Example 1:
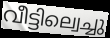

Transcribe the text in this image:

വീട്ടില്വെച്ചു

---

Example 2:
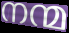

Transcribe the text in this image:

നന്മ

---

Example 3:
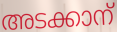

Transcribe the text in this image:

അടക്കാന്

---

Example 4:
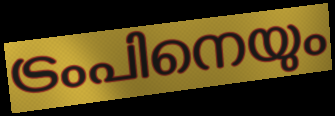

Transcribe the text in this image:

ട്രംപിനെയും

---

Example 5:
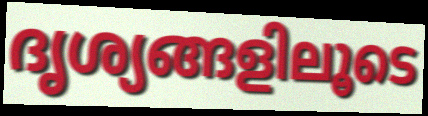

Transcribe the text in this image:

ദൃശ്യങ്ങളിലൂടെ